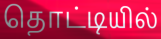
தொட்டியில்